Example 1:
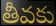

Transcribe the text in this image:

తీవకు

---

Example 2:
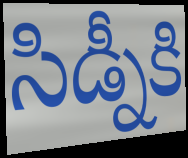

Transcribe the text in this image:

సిడ్నీకి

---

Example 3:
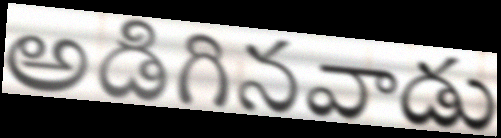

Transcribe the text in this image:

అడిగినవాడు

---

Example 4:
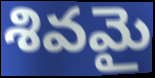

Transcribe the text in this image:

శివమై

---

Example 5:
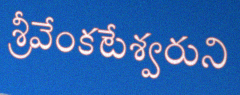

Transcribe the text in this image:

శ్రీవేంకటేశ్వరుని